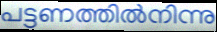
പട്ടണത്തിൽനിന്നു